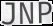
JNP